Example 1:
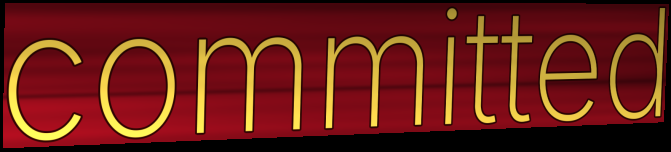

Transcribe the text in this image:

committed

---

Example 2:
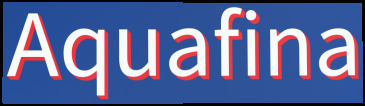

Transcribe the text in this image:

Aquafina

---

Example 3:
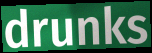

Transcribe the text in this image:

drunks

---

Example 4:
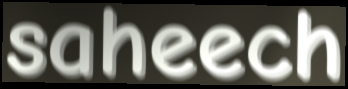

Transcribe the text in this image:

saheech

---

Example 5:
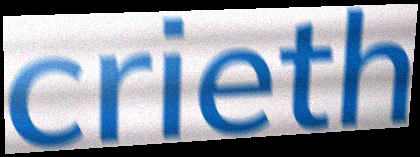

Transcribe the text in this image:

crieth